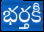
భర్తకీ